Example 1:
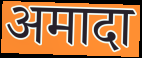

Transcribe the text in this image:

अमादा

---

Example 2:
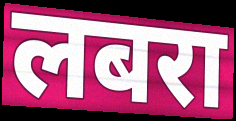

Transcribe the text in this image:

लबरा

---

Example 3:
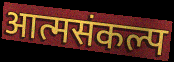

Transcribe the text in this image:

आत्मसंकल्प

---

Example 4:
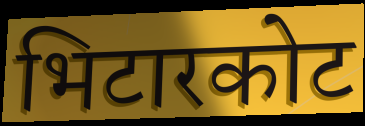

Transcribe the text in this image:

भिटारकोट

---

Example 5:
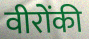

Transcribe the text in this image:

वीरोंकी